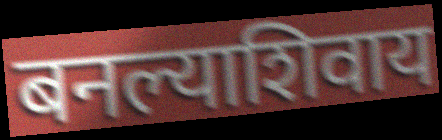
बनल्याशिवाय